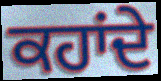
ਕਹਾਂਦੇ